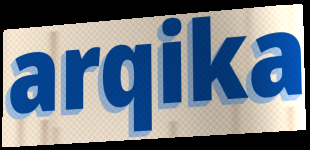
arqika